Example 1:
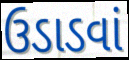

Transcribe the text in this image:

ઉડાડવાં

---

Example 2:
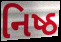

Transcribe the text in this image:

નિષ્ઠ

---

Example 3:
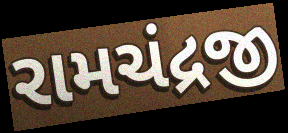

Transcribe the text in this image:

રામચંદ્રજી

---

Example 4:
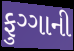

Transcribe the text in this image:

ફુગ્ગાની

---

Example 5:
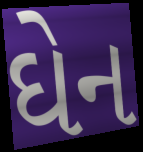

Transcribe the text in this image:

ઘેન